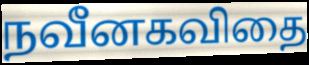
நவீனகவிதை